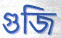
গুজি